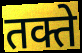
तक्ते